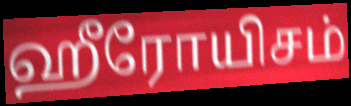
ஹீரோயிசம்